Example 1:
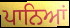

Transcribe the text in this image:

ਪਾਨਿਆਂ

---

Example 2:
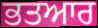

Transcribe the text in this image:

ਭਤਆਰ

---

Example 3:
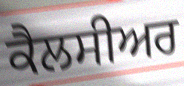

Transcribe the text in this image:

ਕੈਲਸੀਅਰ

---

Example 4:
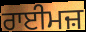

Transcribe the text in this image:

ਰਾਈਮਜ਼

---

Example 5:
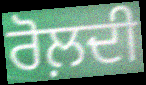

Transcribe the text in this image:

ਰੋਲ਼ਦੀ